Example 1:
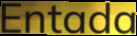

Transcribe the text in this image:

Entada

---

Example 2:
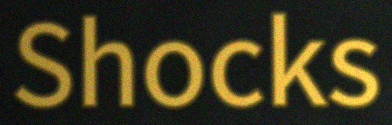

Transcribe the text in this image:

Shocks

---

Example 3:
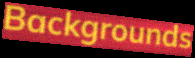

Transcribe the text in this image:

Backgrounds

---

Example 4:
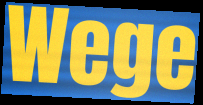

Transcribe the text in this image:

Wege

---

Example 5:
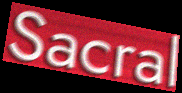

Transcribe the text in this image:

Sacral